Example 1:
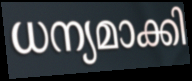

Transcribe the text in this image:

ധന്യമാക്കി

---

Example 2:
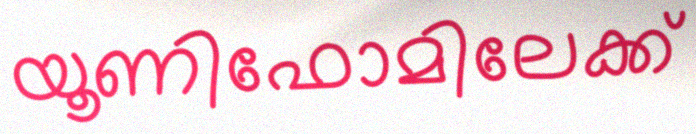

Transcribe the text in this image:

യൂണിഫോമിലേക്ക്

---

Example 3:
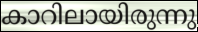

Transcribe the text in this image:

കാറിലായിരുന്നു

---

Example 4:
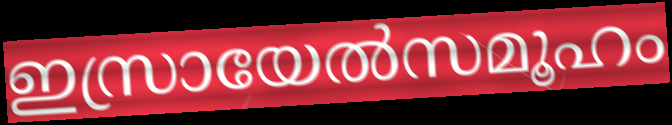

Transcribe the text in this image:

ഇസ്രായേൽസമൂഹം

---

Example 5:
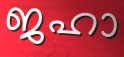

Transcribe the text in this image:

ജഹാ